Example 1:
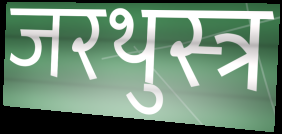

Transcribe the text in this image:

जरथुस्‍त्र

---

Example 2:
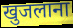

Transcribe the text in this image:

खुजलाना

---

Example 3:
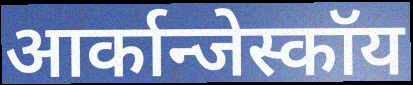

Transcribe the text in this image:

आर्कान्जेस्कॉय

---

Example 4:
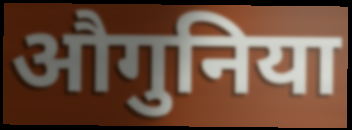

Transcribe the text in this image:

औगुनिया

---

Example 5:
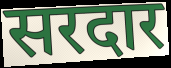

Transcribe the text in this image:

सरदार